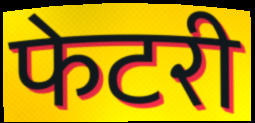
फेटरी